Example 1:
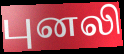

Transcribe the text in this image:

புனலி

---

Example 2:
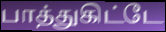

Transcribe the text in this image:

பாத்துகிட்டே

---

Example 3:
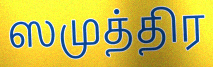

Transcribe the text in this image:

ஸமுத்திர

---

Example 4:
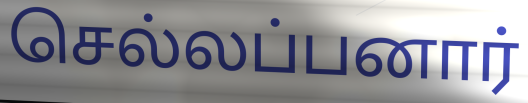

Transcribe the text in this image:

செல்லப்பனார்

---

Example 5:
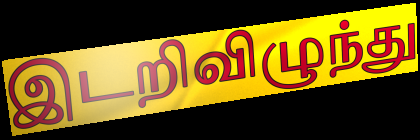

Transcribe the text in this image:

இடறிவிழுந்து